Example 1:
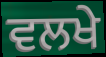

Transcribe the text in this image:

ਵਲਖੇ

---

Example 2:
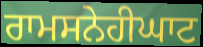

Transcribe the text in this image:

ਰਾਮਸਨੇਹੀਘਾਟ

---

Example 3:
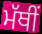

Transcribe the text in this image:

ਮੱਥੀਂ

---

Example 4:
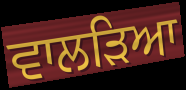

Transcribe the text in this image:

ਵਾਲੜਿਆ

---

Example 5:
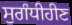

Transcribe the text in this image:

ਸੁਗੰਧੀਹੀਣ